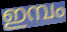
ഇമ്പം